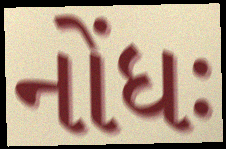
નોંધઃ